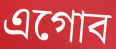
এগোব